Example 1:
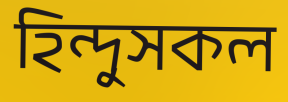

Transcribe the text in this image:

হিন্দুসকল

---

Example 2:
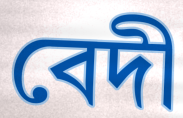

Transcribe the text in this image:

বেদী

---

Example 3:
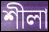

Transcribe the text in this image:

শীলা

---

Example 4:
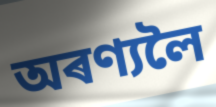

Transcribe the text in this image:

অৰণ্যলৈ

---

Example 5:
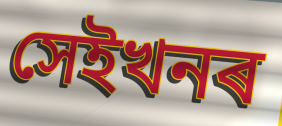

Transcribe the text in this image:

সেইখনৰ